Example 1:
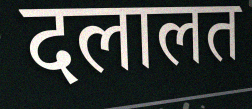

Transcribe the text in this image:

दलालत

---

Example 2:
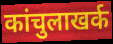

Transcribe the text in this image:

कांचुलाखर्क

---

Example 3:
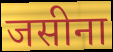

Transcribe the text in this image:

जसीना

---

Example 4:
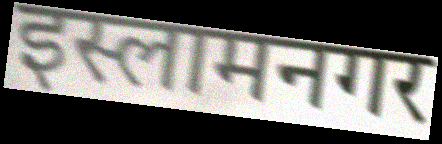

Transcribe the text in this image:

इस्लामनगर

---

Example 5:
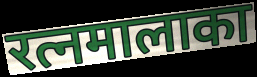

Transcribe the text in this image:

रत्नमालाका